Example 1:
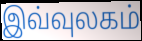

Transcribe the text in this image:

இவ்வுலகம்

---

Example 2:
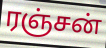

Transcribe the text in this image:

ரஞ்சன்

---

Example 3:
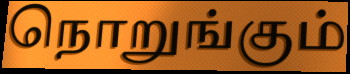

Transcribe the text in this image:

நொறுங்கும்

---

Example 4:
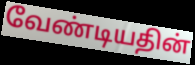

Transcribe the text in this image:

வேண்டியதின்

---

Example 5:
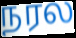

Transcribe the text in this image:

நரல